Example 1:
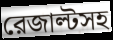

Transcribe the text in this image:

রেজাল্টসহ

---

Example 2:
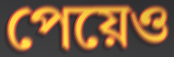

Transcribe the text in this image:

পেয়েও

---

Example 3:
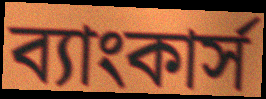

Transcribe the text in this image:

ব্যাংকার্স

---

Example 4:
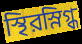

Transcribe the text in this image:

স্থিরস্নিগ্ধ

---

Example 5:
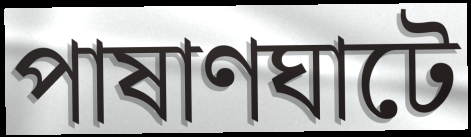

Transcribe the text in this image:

পাষাণঘাটে